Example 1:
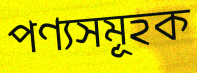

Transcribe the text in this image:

পণ্যসমূহক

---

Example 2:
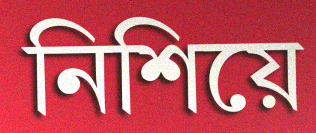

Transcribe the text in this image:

নিশিয়ে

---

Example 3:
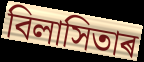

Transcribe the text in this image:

বিলাসিতাৰ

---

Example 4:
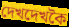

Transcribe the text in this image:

দেখদেখকৈ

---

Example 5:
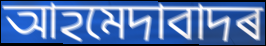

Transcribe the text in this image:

আহমেদাবাদৰ